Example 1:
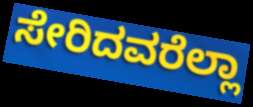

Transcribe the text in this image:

ಸೇರಿದವರೆಲ್ಲಾ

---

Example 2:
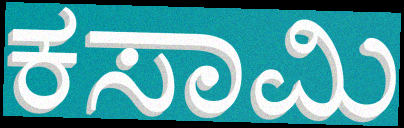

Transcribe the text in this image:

ಕಸಾಮಿ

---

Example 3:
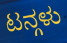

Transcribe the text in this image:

ಟನ್ಗಳು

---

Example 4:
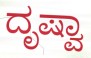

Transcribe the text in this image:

ದೃಷ್ವಾ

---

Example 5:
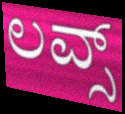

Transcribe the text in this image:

ಲವ್ಸ್